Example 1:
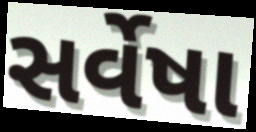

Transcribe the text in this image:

સર્વેષા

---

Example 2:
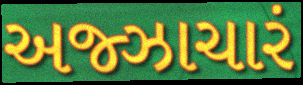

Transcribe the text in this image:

અજ્ઝાચારં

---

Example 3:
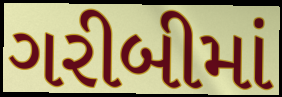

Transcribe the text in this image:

ગરીબીમાં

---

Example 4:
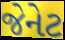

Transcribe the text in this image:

જેનેટ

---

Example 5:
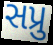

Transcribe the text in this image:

સપ્રુ